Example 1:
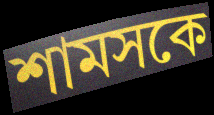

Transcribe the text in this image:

শামসকে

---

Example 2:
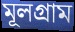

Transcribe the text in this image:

মূলগ্রাম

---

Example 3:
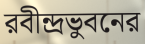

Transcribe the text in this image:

রবীন্দ্রভুবনের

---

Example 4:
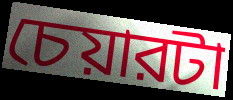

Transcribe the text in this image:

চেয়ারটা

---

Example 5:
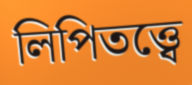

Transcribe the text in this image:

লিপিতত্ত্বে